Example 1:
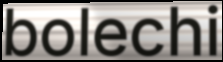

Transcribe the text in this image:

bolechi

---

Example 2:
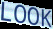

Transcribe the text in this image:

LOOK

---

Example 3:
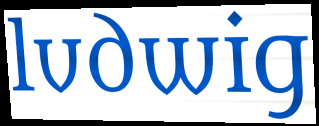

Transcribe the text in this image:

ludwig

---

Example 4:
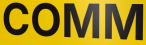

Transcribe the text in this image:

COMM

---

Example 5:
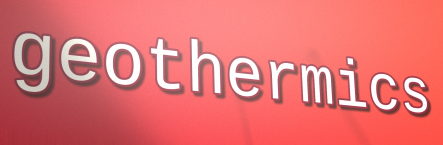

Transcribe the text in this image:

geothermics